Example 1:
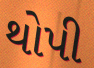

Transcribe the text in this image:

થોપી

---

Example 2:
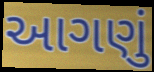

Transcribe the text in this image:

આગણું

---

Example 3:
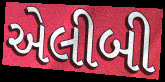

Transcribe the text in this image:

એલીબી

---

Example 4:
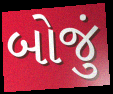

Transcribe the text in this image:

બોજું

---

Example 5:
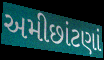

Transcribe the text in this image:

અમીછાંટણાં